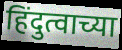
हिंदुत्वाच्या